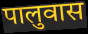
पालुवास